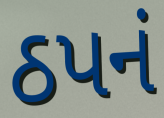
ઠપનં